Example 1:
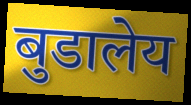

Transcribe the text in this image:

बुडालेय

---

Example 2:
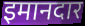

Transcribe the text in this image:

इमानदार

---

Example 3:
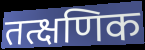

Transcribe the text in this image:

तत्क्षणिक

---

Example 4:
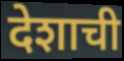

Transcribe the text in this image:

देशाची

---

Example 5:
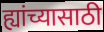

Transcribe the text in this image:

ह्यांच्यासाठी